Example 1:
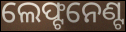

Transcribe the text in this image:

ଲେଫ୍ଟନେଣ୍ଟ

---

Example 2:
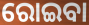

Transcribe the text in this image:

ରୋଇବା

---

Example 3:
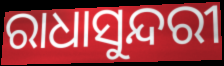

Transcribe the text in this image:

ରାଧାସୁନ୍ଦରୀ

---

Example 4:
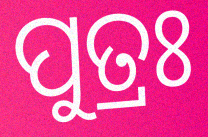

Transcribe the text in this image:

ପୁତ୍ରଃ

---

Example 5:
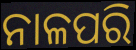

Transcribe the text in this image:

ନାଳପରି